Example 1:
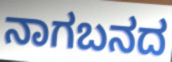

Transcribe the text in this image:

ನಾಗಬನದ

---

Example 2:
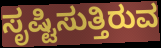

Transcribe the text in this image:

ಸೃಷ್ಟಿಸುತ್ತಿರುವ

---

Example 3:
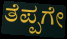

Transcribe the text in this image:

ತೆಪ್ಪಗೇ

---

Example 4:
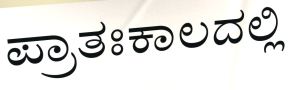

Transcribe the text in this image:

ಪ್ರಾತಃಕಾಲದಲ್ಲಿ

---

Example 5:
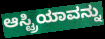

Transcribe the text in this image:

ಆಸ್ಟ್ರಿಯಾವನ್ನು